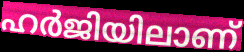
ഹർജിയിലാണ്